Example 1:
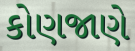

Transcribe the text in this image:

કોણજાણે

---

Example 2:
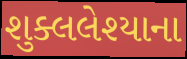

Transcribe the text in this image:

શુક્લલેશ્યાના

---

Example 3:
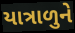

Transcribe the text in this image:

યાત્રાળુને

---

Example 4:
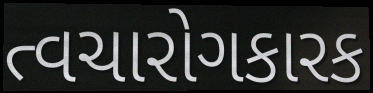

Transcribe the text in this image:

ત્વચારોગકારક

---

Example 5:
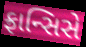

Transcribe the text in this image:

ફ્રાન્સિસે